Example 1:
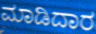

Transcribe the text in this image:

ಮಾಡಿದಾರ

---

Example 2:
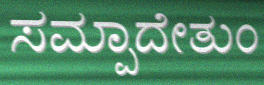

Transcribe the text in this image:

ಸಮ್ಪಾದೇತುಂ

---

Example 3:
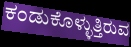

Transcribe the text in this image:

ಕಂಡುಕೊಳ್ಳುತ್ತಿರುವ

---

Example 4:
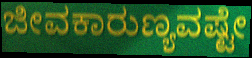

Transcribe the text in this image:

ಜೀವಕಾರುಣ್ಯವಷ್ಟೇ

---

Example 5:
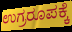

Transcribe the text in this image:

ಉಗ್ರರೂಪಕ್ಕೆ